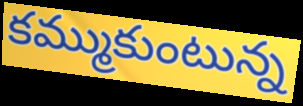
కమ్ముకుంటున్న